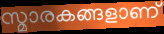
സ്മാരകങ്ങളാണ്